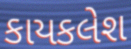
કાયકલેશ